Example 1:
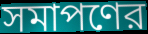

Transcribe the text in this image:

সমাপণের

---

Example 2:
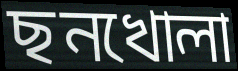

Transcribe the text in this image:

ছনখোলা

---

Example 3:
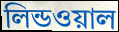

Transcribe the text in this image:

লিন্ডওয়াল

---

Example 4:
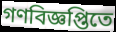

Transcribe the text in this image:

গণবিজ্ঞপ্তিতে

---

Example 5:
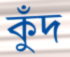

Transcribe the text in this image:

কুঁদ